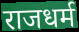
राजधर्म